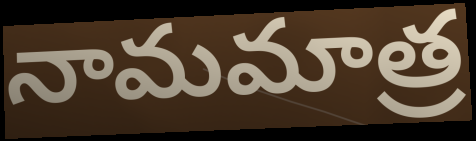
నామమాత్ర